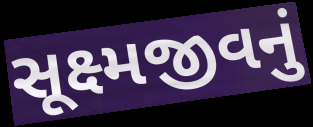
સૂક્ષ્મજીવનું